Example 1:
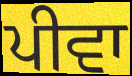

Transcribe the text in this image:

ਪੀਵਾ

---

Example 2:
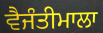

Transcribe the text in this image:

ਵੈਜੰਤੀਮਾਲਾ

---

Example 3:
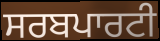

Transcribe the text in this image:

ਸਰਬਪਾਰਟੀ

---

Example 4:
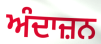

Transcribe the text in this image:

ਅੰਦਾਜ਼ਨ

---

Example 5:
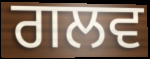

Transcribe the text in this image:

ਗਲਵ